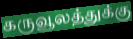
கருவூலத்துக்கு